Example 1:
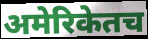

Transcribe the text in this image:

अमेरिकेतच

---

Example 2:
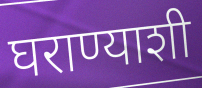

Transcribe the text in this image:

घराण्याशी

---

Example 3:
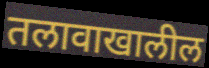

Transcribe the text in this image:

तलावाखालील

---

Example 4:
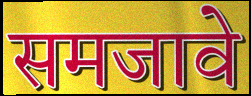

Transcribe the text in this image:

समजावे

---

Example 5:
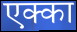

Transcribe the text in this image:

एक्का